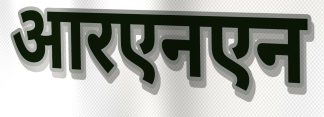
आरएनएन